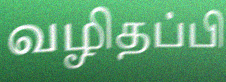
வழிதப்பி